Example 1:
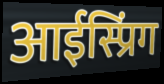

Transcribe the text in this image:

आईस्प्रिंग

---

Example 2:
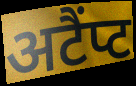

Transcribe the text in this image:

अटैंप्ट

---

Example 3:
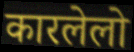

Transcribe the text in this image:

कारलेलो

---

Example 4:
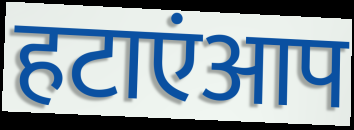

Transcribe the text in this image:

हटाएंआप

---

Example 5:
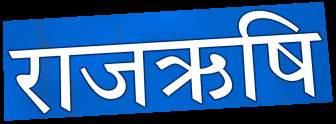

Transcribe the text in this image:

राजऋषि